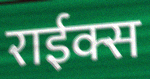
राईक्स